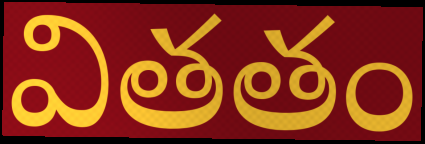
వితతం